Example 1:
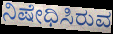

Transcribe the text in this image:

ನಿಷೇಧಿಸಿರುವ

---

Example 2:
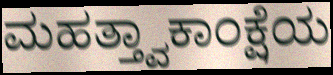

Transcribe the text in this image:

ಮಹತ್ತ್ವಾಕಾಂಕ್ಷೆಯ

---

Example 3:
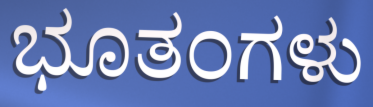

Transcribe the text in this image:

ಭೂತಂಗಳು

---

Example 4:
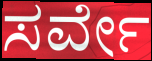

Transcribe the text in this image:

ಸರ್ವೇ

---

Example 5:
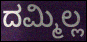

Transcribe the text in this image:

ದಮ್ಮಿಲ್ಲ